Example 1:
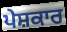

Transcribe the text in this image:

ਪੇਸ਼ਕਾਰ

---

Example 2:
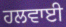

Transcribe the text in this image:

ਹਲਵਾਈ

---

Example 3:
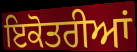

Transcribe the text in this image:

ਇਕੋਤਰੀਆਂ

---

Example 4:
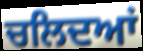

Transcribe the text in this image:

ਚਲਿਦਆਂ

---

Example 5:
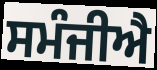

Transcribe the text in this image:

ਸਮੰਜੀਐ